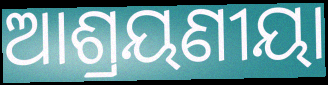
ଆଶ୍ରୟଣୀୟା